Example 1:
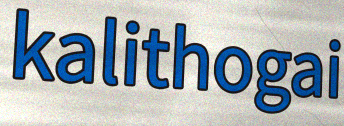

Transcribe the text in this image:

kalithogai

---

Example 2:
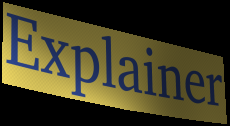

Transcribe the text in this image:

Explainer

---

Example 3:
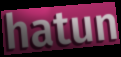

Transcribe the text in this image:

hatun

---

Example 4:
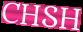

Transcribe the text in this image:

CHSH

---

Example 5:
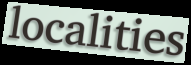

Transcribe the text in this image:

localities